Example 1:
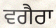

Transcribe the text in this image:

ਵਗੈਰਾ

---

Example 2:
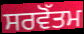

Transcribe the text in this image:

ਸਰਵੋੱਤਮ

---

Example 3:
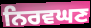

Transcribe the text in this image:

ਨਿਰਵਘਣ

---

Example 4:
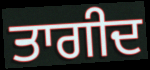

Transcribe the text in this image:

ਤਾਗੀਦ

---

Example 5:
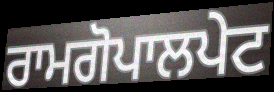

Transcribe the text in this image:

ਰਾਮਗੋਪਾਲਪੇਟ